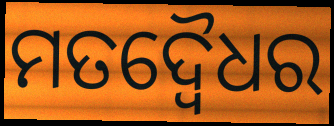
ମତଦ୍ୱୈଧର